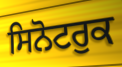
ਸਿਨੋਟਰੁਕ